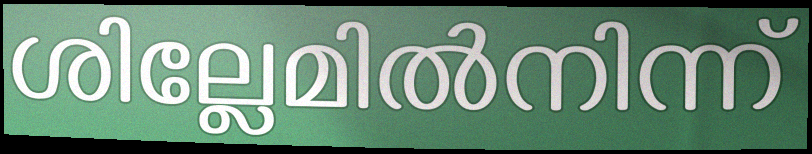
ശില്ലേമിൽനിന്ന്